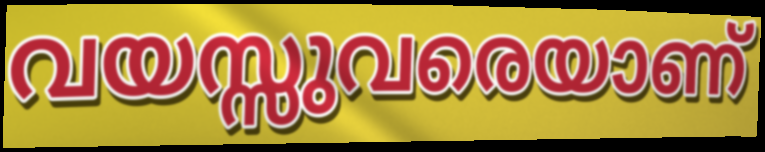
വയസ്സുവരെയാണ്